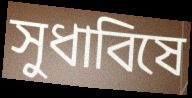
সুধাবিষে